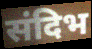
संदिभ